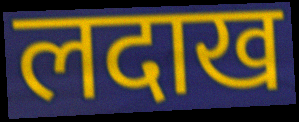
लदाख